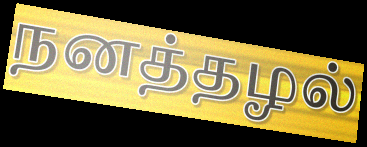
நனத்தழல்